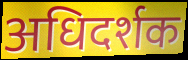
अधिदर्शक